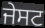
ਜੇਸਟ